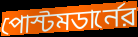
পোস্টমডার্নের